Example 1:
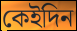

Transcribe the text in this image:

কেইদিন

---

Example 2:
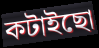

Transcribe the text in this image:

কটাইছো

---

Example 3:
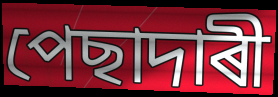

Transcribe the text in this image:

পেছাদাৰী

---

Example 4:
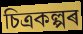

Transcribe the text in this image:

চিত্ৰকল্পৰ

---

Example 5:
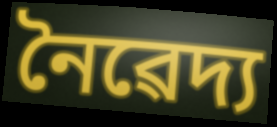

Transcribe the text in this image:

নৈৱেদ্য